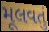
મૂલવતું